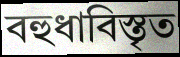
বহুধাবিস্তৃত